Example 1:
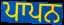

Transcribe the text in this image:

ਪਾਪਨ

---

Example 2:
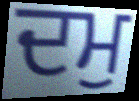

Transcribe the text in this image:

ਦਮੁ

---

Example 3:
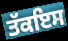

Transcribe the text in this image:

ਤੱਕਇਸ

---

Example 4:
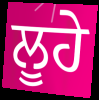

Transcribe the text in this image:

ਲੂਹੇ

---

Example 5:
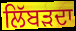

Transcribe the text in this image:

ਲਿੱਬੜਦਾ